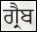
ਗ੍ਰੈਬ